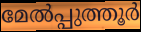
മേൽപ്പുത്തൂർ